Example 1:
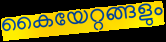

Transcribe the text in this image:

കൈയേറ്റങ്ങളും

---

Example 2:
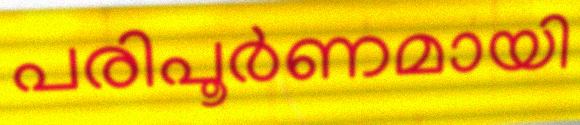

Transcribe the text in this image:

പരിപൂർണമായി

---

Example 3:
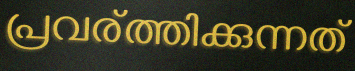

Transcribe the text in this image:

പ്രവര്ത്തിക്കുന്നത്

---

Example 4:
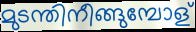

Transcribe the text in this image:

മുടന്തിനീങ്ങുമ്പോള്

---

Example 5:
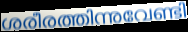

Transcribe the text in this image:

ശരീരത്തിന്നുവേണ്ടി